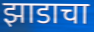
झाडाचा